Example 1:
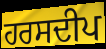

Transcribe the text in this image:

ਹਰਸਦੀਪ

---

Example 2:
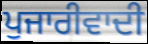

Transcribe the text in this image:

ਪੁਜਾਰੀਵਾਦੀ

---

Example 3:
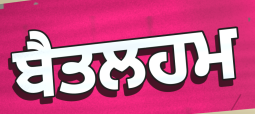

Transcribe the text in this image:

ਬੈਤਲਹਮ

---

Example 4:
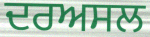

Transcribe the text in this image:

ਦਰਅਸਲ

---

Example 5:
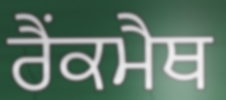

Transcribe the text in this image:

ਰੈਂਕਮੈਥ